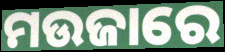
ମଉଜାରେ